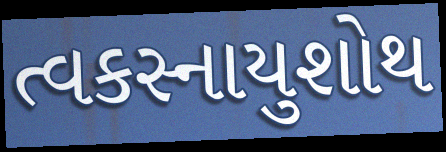
ત્વકસ્નાયુશોથ